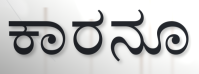
ಕಾರನೂ